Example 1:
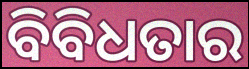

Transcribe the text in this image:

ବିବିଧତାର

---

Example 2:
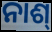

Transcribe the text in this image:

ନାଶ୍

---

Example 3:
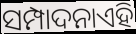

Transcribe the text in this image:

ସମ୍ପାଦନାଏହି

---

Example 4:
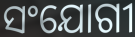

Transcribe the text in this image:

ସଂଯୋଗୀ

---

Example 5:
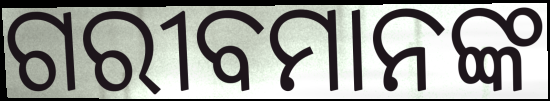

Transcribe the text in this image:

ଗରୀବମାନଙ୍କ